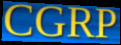
CGRP